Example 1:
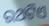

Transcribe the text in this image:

ରଥଟିଏ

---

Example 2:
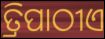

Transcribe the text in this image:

ତ୍ରିପାଠୀଏ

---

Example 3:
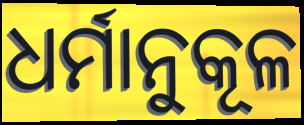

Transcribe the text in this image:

ଧର୍ମାନୁକୂଳ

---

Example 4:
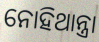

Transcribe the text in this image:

ନୋହିଥାନ୍ତ୍ରା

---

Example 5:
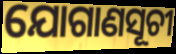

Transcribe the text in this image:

ଯୋଗାଣସୂଚୀ